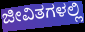
ಜೀವಿತಗಳಲ್ಲಿ